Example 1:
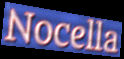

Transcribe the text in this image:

Nocella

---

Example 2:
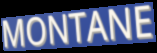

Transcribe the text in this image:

MONTANE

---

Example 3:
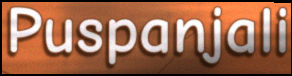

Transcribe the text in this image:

Puspanjali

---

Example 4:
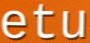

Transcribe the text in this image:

etu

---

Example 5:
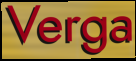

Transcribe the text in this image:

Verga